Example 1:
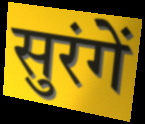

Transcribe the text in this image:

सुरंगें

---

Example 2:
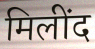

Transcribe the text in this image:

मिलींद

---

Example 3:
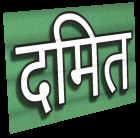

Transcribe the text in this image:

दमित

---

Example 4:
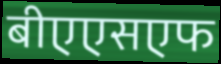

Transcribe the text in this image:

बीएएसएफ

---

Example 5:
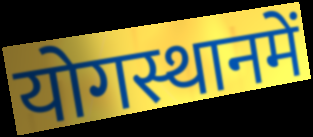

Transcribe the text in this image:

योगस्थानमें